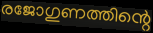
രജോഗുണത്തിന്റെ